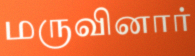
மருவினார்